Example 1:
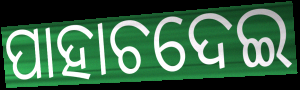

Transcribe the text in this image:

ପାହାଚଦେଇ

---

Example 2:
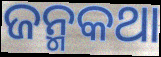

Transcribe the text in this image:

ଜନ୍ମକଥା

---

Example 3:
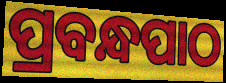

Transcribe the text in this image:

ପ୍ରବନ୍ଧପାଠ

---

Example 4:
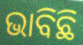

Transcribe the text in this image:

ଭାବିଛି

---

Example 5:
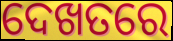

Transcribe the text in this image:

ଦେଖତରେ